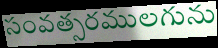
సంవత్సరములగును